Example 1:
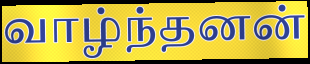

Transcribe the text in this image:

வாழ்ந்தனன்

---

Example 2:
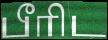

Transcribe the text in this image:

பீரிட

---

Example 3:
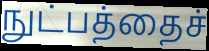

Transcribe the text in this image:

நுட்பத்தைச்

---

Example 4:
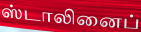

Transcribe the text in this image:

ஸ்டாலினைப்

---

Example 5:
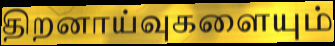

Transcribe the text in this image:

திறனாய்வுகளையும்